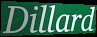
Dillard